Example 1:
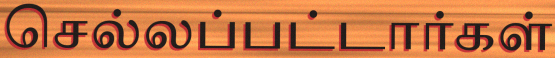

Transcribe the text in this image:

செல்லப்பட்டார்கள்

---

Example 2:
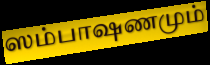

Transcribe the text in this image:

ஸம்பாஷணமும்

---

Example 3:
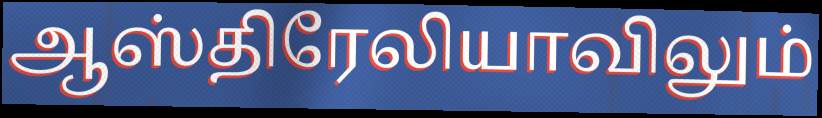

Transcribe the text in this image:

ஆஸ்திரேலியாவிலும்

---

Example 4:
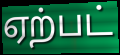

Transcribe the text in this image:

ஏற்பட்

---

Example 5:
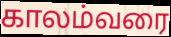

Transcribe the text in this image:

காலம்வரை